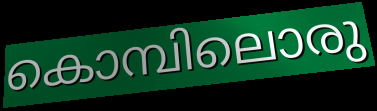
കൊമ്പിലൊരു